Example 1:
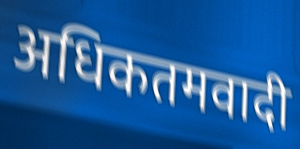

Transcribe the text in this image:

अधिकतमवादी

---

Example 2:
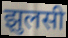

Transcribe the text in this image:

झुलसी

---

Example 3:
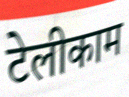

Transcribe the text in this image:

टेलीकाम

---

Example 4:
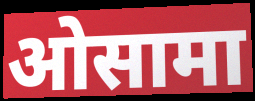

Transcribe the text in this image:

ओसामा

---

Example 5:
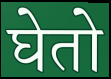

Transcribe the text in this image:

घेतो